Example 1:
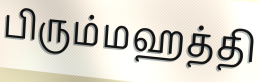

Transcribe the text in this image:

பிரும்மஹத்தி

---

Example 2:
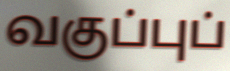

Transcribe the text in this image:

வகுப்புப்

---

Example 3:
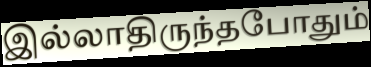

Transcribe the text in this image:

இல்லாதிருந்தபோதும்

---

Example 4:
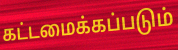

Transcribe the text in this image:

கட்டமைக்கப்படும்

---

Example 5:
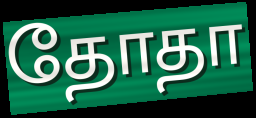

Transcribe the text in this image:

தோதா